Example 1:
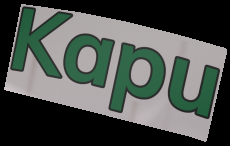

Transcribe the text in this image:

Kapu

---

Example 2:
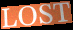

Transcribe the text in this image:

LOST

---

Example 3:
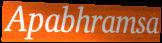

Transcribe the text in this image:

Apabhramsa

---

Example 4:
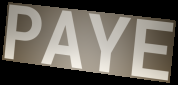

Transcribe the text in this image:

PAYE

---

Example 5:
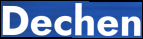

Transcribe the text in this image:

Dechen